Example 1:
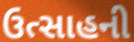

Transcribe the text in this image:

ઉત્સાહની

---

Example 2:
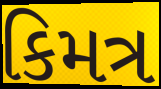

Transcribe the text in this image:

કિમત્ર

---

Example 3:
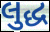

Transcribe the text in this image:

લુદ્ધ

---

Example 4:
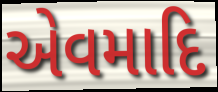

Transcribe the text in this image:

એવમાદિ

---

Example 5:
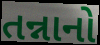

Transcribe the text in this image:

તન્નાનો